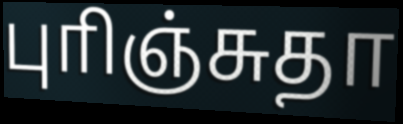
புரிஞ்சுதா